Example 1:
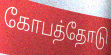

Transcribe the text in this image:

கோபத்தோடு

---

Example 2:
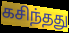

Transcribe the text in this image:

கசிந்தது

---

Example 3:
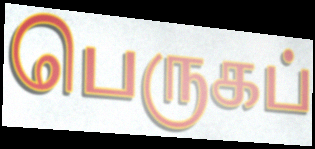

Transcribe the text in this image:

பெருகப்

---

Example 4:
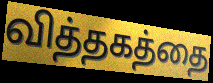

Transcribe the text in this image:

வித்தகத்தை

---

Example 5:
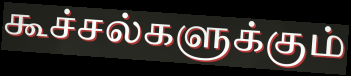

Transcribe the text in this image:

கூச்சல்களுக்கும்